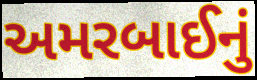
અમરબાઈનું